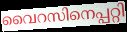
വൈറസിനെപ്പറ്റി